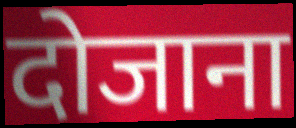
दोजाना